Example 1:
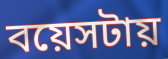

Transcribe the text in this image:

বয়েসটায়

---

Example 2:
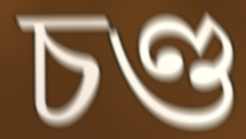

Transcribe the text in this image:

চণ্ড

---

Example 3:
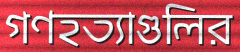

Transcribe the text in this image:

গণহত্যাগুলির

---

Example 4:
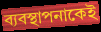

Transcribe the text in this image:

ব্যবস্থাপনাকেই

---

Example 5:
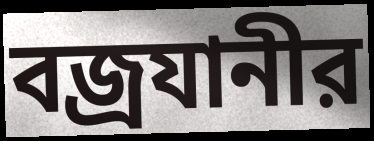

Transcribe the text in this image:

বজ্রযানীর